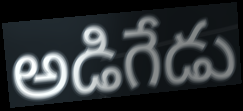
అడిగేడు